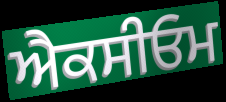
ਐਕਸੀਓਮ